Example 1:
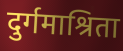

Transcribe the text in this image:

दुर्गमाश्रिता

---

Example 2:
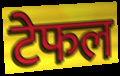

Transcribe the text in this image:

टेफल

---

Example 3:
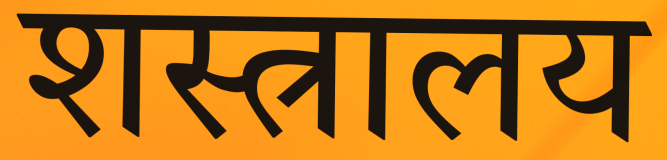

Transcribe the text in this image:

शस्त्रालय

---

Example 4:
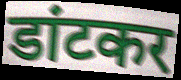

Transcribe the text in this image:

डांटकर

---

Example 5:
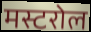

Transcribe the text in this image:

मस्टरोल